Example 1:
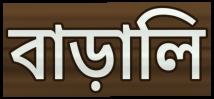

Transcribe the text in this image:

বাড়ালি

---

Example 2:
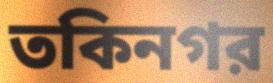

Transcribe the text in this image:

তকিনগর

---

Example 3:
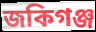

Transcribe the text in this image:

জকিগঞ্জ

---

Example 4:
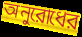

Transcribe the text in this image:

অনুরোধের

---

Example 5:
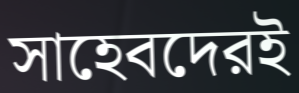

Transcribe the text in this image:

সাহেবদেরই